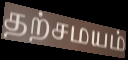
தற்சமயம்